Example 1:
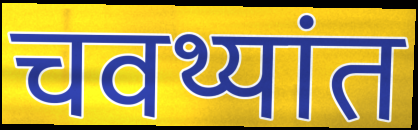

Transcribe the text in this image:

चवथ्यांत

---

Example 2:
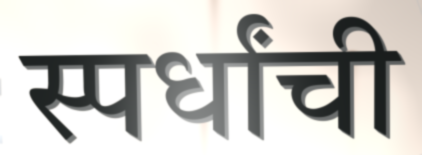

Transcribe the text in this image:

स्पर्धांची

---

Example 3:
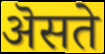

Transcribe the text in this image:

ऄसते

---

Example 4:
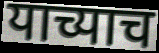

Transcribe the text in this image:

याच्याच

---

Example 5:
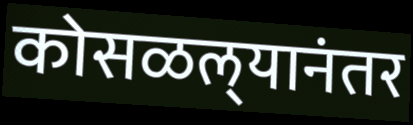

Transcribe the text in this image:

कोसळल्यानंतर